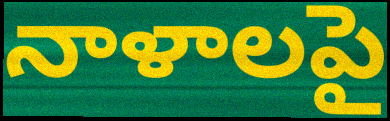
నాళాలపై